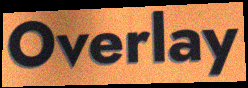
Overlay